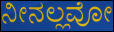
ನೀನಲ್ಲವೋ